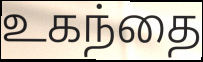
உகந்தை